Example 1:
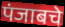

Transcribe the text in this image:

पंजाबचे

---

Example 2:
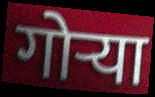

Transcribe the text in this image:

गोऱ्या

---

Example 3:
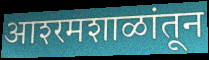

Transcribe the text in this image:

आश्रमशाळांतून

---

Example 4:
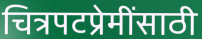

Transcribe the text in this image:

चित्रपटप्रेमींसाठी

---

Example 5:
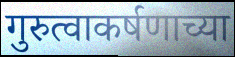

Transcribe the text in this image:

गुरुत्वाकर्षणाच्या